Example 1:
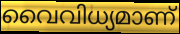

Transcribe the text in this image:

വൈവിധ്യമാണ്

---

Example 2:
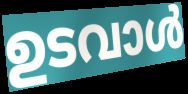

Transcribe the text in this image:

ഉടവാൾ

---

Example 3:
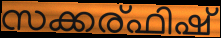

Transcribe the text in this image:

സക്കര്ഫിഷ്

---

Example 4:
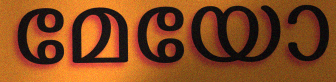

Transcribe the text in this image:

മേയോ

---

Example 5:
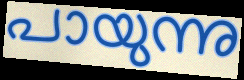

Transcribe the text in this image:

പായുന്നു